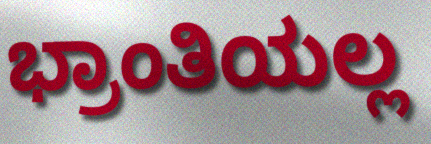
ಭ್ರಾಂತಿಯಲ್ಲ